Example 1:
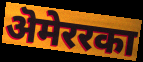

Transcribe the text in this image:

ऄमेररका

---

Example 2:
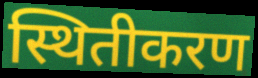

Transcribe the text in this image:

स्थितीकरण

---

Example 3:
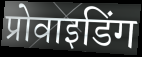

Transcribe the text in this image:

प्रोवाइडिंग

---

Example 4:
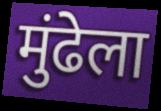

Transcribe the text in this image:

मुंढेला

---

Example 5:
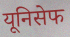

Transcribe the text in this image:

यूनिसेफ